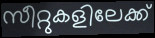
സീറ്റുകളിലേക്ക്